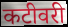
कटीवरी